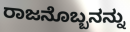
ರಾಜನೊಬ್ಬನನ್ನು